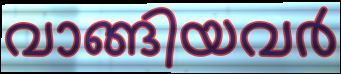
വാങ്ങിയവർ